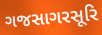
ગજસાગરસૂરિ